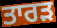
ਤਾਰੜ